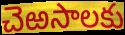
చెఱసాలకు